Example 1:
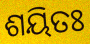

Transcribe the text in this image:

ଶୟିତଃ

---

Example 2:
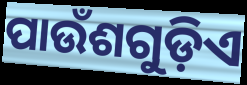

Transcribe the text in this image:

ପାଉଁଶଗୁଡ଼ିଏ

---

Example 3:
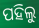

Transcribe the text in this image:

ପହିଲୁ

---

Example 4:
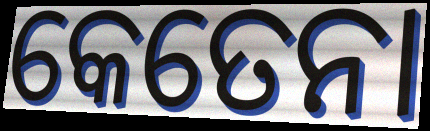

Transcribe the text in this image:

କେତେନା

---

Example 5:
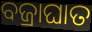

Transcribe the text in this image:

ବଜ୍ରାଘାତ